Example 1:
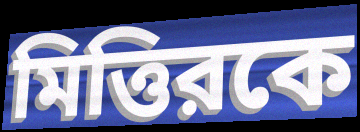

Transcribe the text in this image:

মিত্তিরকে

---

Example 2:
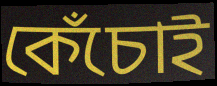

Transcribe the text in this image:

কেঁচোই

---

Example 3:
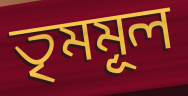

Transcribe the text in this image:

তৃমমূল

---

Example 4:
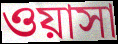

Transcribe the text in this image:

ওয়াসা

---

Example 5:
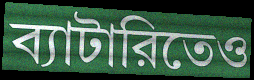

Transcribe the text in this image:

ব্যাটারিতেও